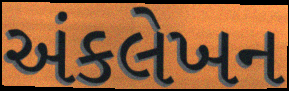
અંકલેખન